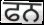
ਫਨ